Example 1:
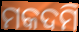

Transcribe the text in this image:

ମକଦମି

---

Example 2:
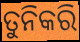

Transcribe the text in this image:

ତୁନିକରି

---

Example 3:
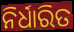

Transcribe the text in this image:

ନିର୍ଧାରିତ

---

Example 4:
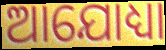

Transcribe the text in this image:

ଆଯୋଧ୍ୟା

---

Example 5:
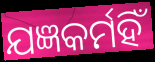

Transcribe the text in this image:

ଯଜ୍ଞକର୍ମହିଁ